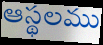
ఆస్థలము